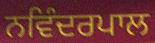
ਨਵਿੰਦਰਪਾਲ